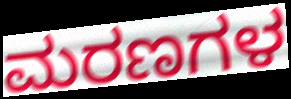
ಮರಣಗಳ